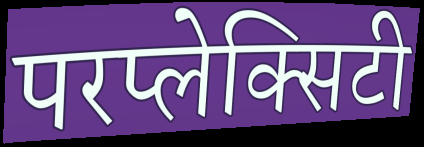
परप्लेक्सिटी